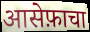
आसेफ़ाचा